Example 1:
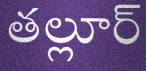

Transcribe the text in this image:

తల్లూర్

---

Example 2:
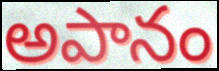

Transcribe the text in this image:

అపానం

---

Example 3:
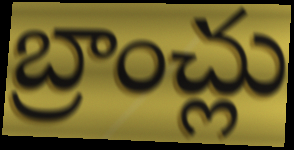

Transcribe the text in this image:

బ్రాంచ్లు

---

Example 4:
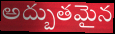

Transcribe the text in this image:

అద్బుతమైన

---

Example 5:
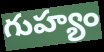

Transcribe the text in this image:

గుహ్యం